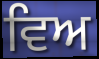
ਵਿਅ